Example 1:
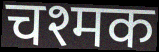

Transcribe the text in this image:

चश्मक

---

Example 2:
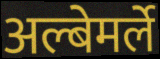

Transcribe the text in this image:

अल्बेमर्ले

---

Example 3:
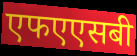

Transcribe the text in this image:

एफएएसबी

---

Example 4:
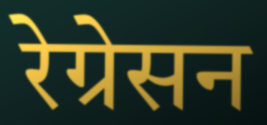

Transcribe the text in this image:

रेग्रेसन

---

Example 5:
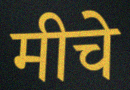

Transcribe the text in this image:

मीचे